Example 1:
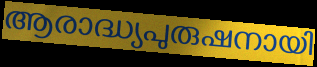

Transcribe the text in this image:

ആരാദ്ധ്യപുരുഷനായി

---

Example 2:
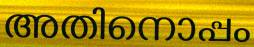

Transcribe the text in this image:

അതിനൊപ്പം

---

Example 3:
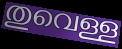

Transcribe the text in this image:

തുവെള്ള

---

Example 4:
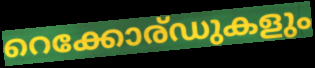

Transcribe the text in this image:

റെക്കോര്ഡുകളും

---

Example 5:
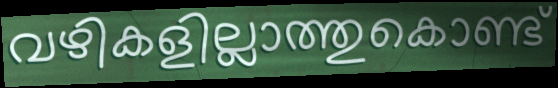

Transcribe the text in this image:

വഴികളില്ലാത്തുകൊണ്ട്